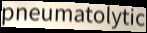
pneumatolytic